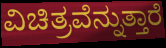
ವಿಚಿತ್ರವೆನ್ನುತ್ತಾರೆ